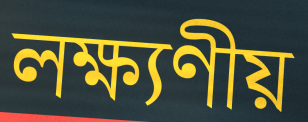
লক্ষ্যণীয়